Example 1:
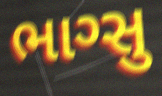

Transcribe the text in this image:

ભાગ્સુ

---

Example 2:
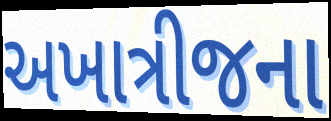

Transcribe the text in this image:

અખાત્રીજના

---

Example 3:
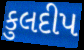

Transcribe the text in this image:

કુલદીપ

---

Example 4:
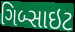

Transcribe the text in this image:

ગિબ્સાઇટ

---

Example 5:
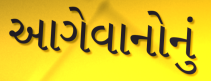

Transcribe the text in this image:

આગેવાનોનું